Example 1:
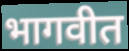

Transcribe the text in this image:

भागवीत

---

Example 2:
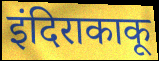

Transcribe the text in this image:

इंदिराकाकू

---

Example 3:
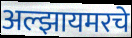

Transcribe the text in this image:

अल्झायमरचे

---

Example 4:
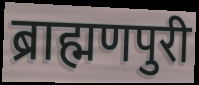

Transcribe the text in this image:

ब्राह्मणपुरी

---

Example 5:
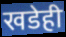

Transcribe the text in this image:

खडेही